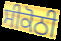
ਸੀਕੋਠੀ